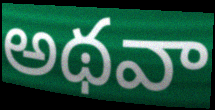
అథవా